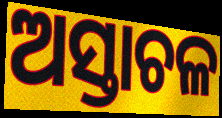
ଅସ୍ତାଚଳ